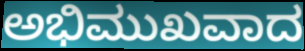
ಅಭಿಮುಖವಾದ